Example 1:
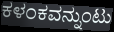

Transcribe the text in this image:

ಕಳಂಕವನ್ನುಂಟು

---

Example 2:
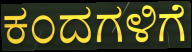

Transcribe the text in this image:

ಕಂದಗಳಿಗೆ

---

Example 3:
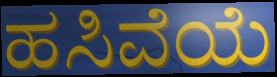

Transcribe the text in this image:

ಹಸಿವೆಯೆ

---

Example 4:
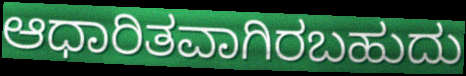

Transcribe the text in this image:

ಆಧಾರಿತವಾಗಿರಬಹುದು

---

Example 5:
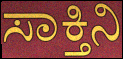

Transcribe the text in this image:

ಸಾಕ್ತಿನಿ